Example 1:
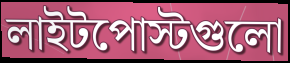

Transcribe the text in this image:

লাইটপোস্টগুলো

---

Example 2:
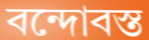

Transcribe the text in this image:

বন্দোবস্ত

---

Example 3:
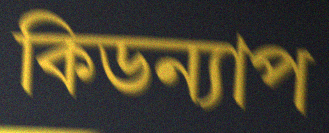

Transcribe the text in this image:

কিডন্যাপ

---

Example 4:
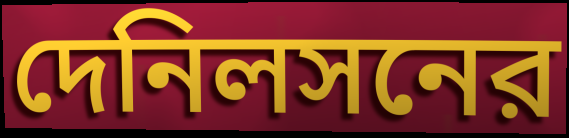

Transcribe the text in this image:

দেনিলসনের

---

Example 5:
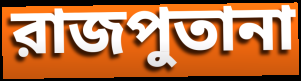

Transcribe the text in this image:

রাজপুতানা